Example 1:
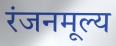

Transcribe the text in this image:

रंजनमूल्य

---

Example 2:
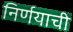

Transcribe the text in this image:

निर्णयाची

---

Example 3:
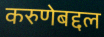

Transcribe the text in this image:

करुणेबद्दल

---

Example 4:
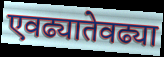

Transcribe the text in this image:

एवढ्यातेवढ्या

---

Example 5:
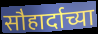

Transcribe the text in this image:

सौहार्दाच्या